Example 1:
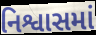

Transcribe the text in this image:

નિશ્વાસમાં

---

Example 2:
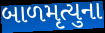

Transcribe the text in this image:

બાળમૃત્યુના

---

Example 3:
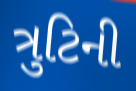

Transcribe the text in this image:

ત્રુટિની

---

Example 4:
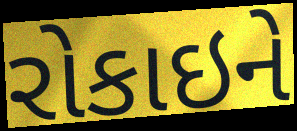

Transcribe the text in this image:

રોકાઇને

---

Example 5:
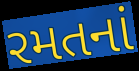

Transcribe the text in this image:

રમતનાં